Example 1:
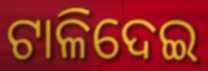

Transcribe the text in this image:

ଟାଳିଦେଇ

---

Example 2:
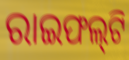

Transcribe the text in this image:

ରାଇଫଲ୍‍ଟି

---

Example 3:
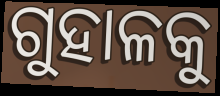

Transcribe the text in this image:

ଗୁହାଳକୁ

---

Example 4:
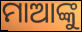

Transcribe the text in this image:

ମାଆଙ୍କୁ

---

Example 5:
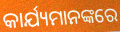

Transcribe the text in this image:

କାର୍ଯ୍ୟମାନଙ୍କରେ